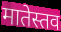
मातेस्तव